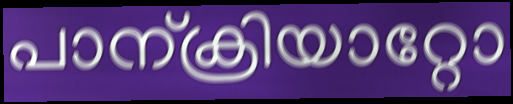
പാന്ക്രിയാറ്റോ